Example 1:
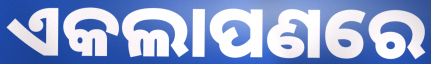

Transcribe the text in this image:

ଏକଲାପଣରେ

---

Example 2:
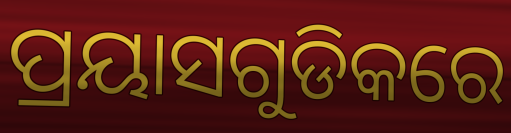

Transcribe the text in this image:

ପ୍ରୟାସଗୁଡିକରେ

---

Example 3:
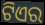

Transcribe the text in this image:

ଟିଏର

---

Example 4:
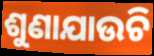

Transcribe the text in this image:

ଶୁଣାଯାଉଚି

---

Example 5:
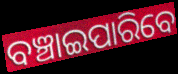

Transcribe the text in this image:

ବଞ୍ଚାଇପାରିବେ